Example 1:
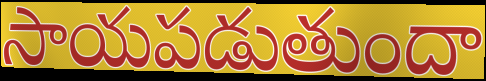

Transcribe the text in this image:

సాయపడుతుందా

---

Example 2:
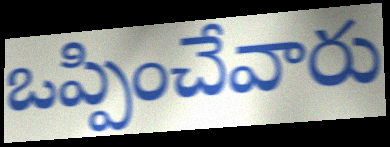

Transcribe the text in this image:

ఒప్పించేవారు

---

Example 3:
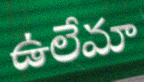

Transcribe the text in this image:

ఉలేమా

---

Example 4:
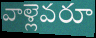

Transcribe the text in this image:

వాళ్లెవరూ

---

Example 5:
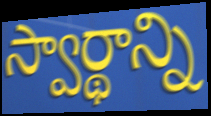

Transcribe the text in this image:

స్వార్థాన్ని